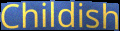
Childish